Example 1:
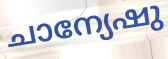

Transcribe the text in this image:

ചാന്യേഷു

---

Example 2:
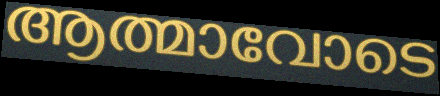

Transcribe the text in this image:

ആത്മാവോടെ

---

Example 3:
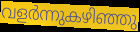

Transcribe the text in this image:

വളർന്നുകഴിഞ്ഞു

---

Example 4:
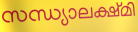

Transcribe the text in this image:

സന്ധ്യാലക്ഷ്മി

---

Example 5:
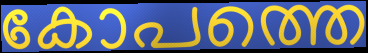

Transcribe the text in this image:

കോപത്തെ